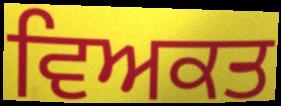
ਵਿਅਕਤ